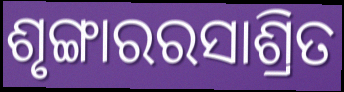
ଶୃଙ୍ଗାରରସାଶ୍ରିତ